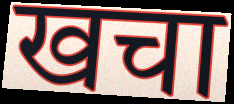
खचा